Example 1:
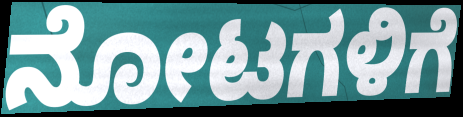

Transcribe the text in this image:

ನೋಟಗಳಿಗೆ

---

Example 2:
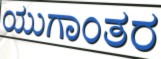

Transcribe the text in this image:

ಯುಗಾಂತರ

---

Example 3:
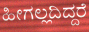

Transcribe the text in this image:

ಹೀಗಲ್ಲದಿದ್ದರೆ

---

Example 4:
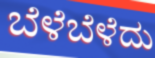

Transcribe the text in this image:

ಬೆಳೆಬೆಳೆದು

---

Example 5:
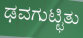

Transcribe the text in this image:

ಢವಗುಟ್ಟಿತು